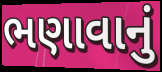
ભણાવાનું